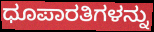
ಧೂಪಾರತಿಗಳನ್ನು